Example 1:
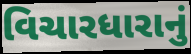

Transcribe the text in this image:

વિચારધારાનું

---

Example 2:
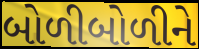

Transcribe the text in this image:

બોળીબોળીને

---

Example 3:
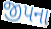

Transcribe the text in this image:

જીપના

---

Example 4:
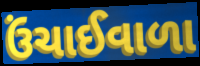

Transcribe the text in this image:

ઉંચાઈવાળા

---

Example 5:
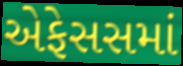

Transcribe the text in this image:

એફેસસમાં